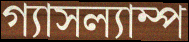
গ্যাসল্যাম্প